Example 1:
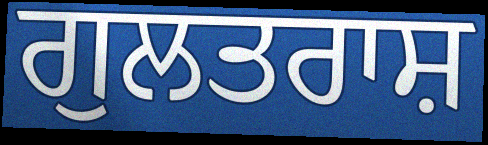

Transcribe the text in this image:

ਗੁਲਤਰਾਸ਼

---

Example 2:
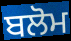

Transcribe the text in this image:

ਬਲੋਮ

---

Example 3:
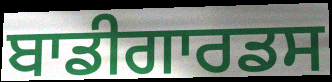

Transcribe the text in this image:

ਬਾਡੀਗਾਰਡਸ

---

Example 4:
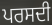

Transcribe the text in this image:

ਪਰਸਦੀ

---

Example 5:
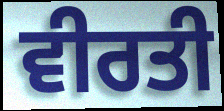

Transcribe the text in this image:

ਵੀਰਤੀ